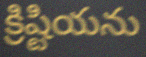
క్రిష్టియను